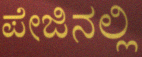
ಪೇಜಿನಲ್ಲಿ